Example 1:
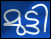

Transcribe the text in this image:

മുട്ടി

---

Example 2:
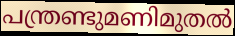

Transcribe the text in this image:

പന്ത്രണ്ടുമണിമുതൽ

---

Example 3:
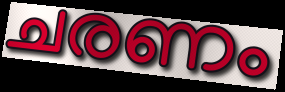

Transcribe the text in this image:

ചരണം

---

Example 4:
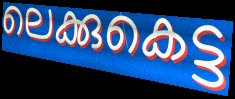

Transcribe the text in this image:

ലെക്കുകെട്ട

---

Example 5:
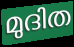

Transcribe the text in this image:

മുദിത